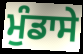
ਮੁੰਡਾਸੇ